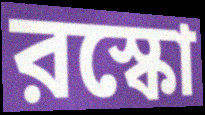
রস্কো